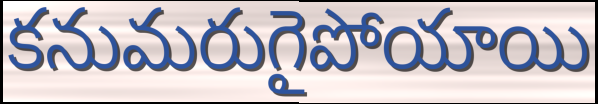
కనుమరుగైపోయాయి